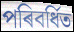
পৰিবৰ্ধিত